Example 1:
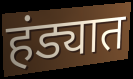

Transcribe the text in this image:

हंड्यात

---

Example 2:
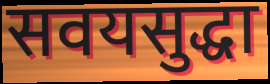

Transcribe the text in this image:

सवयसुद्धा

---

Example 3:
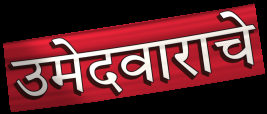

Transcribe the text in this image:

उमेदवाराचे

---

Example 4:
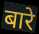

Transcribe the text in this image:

बारे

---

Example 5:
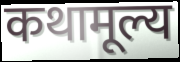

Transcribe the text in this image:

कथामूल्य